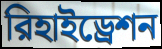
রিহাইড্রেশন